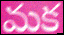
మక